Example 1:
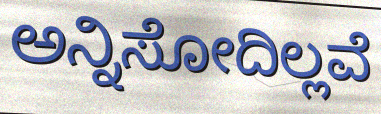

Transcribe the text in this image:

ಅನ್ನಿಸೋದಿಲ್ಲವೆ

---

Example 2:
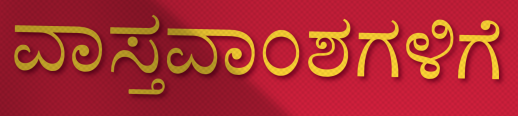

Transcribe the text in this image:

ವಾಸ್ತವಾಂಶಗಳಿಗೆ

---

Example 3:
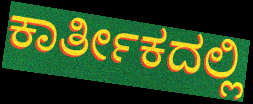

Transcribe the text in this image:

ಕಾರ್ತೀಕದಲ್ಲಿ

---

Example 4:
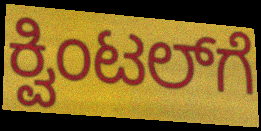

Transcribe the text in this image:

ಕ್ವಿಂಟಲ್‌ಗೆ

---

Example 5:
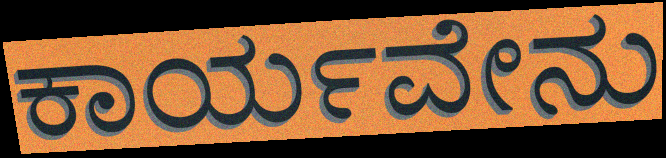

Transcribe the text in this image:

ಕಾರ್ಯವೇನು